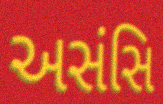
અસંસિ